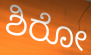
ಶಿರೋ